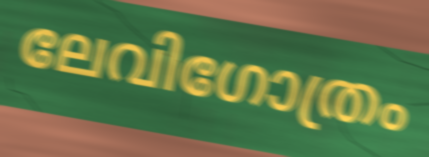
ലേവിഗോത്രം